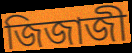
জিজাজী